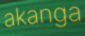
akanga